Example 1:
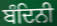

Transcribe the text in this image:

ਬੰਦਿਨੀ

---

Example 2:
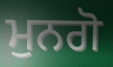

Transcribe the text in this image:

ਮੁਨਗੋ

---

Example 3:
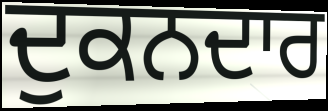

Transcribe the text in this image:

ਦੁਕਨਦਾਰ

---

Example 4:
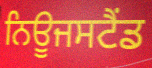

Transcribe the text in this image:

ਨਿਊਜਸਟੈਂਡ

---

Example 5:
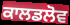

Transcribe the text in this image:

ਕਾਲਡਲੋਵ